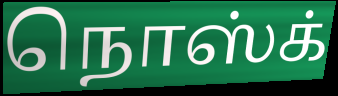
நொஸ்க்